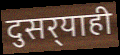
दुसर्‍याही